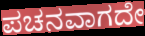
ಪಚನವಾಗದೇ